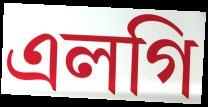
এলগি